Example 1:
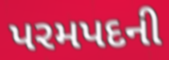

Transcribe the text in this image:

પરમપદની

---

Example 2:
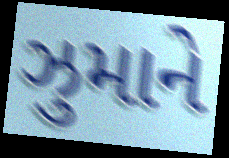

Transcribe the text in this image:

ઝુમાને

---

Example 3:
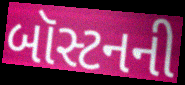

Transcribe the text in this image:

બૉસ્ટનની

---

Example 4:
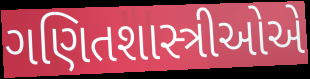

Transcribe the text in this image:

ગણિતશાસ્ત્રીઓએ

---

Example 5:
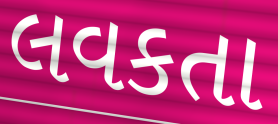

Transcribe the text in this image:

લવકતા